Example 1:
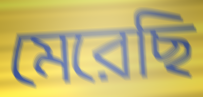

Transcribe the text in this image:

মেরেছি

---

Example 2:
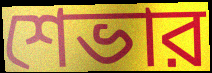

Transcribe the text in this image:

শেভার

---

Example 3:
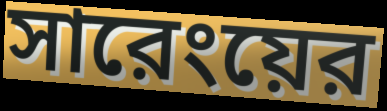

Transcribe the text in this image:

সারেংয়ের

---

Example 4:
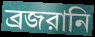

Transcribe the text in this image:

ব্রজরানি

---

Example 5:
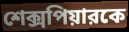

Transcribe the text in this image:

শেক্সপিয়ারকে